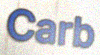
Carb